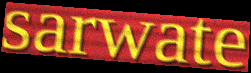
sarwate